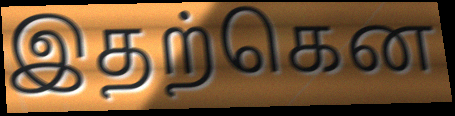
இதற்கென